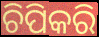
ଚିପିକରି